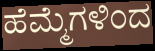
ಹೆಮ್ಮೆಗಳಿಂದ